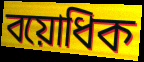
বয়োধিক